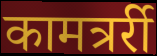
कामत्रर्री